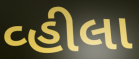
વ્હીલા